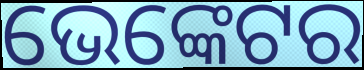
ଭେଙ୍କେଟର